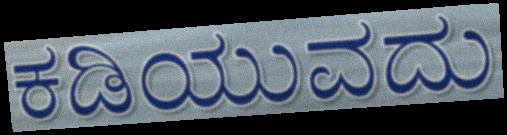
ಕಡಿಯುವದು